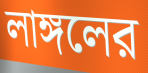
লাঙ্গলের